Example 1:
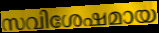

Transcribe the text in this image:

സവിശേഷമായ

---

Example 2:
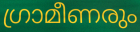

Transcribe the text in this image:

ഗ്രാമീണരും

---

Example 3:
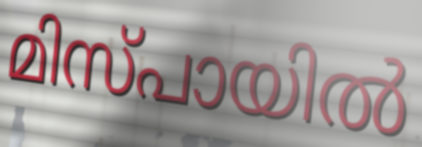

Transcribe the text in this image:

മിസ്പായിൽ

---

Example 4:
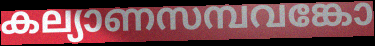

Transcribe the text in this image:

കല്യാണസമ്പവങ്കോ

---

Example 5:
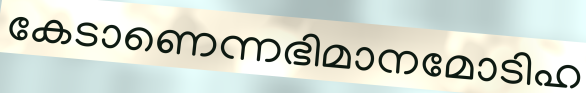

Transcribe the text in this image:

കേടാണെന്നഭിമാനമോടിഹ